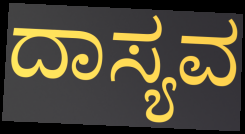
ದಾಸ್ಯವ